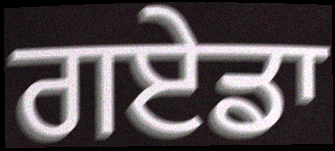
ਗਏਡਾ